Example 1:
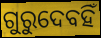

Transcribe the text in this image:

ଗୁରୁଦେବହିଁ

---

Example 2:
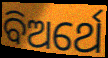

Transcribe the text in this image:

ବିଅର୍ଥେ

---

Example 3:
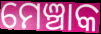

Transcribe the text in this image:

ମେଞ୍ଚାକ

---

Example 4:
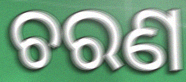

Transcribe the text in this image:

ଚରଣ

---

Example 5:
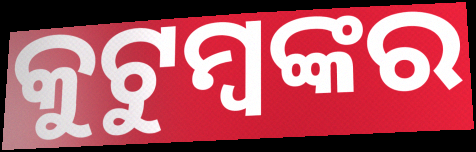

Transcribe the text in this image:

କୁଟୁମ୍ବଙ୍କର